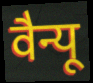
वैन्यू